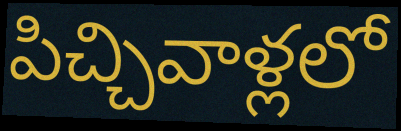
పిచ్చివాళ్లలో